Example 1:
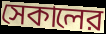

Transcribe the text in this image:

সেকালের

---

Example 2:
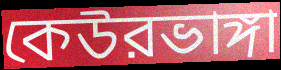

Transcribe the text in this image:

কেউরভাঙ্গা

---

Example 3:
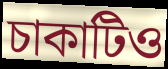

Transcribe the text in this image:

চাকাটিও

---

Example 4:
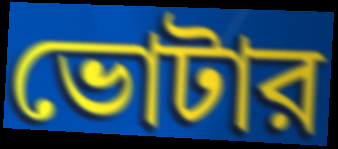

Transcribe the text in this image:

ভোটার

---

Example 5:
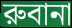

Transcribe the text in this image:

রুবানা